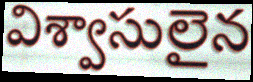
విశ్వాసులైన